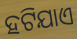
ହଟିଯାଏ